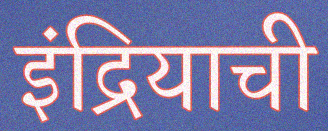
इंद्रियाची